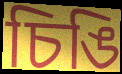
চিঙি